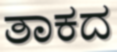
ತಾಕದ